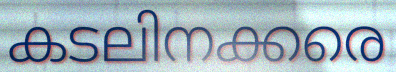
കടലിനക്കരെ